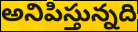
అనిపిస్తున్నది